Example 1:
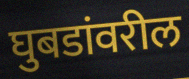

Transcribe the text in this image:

घुबडांवरील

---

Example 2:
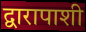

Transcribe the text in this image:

द्वारापाशी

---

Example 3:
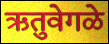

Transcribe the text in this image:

ऋतुवेगळे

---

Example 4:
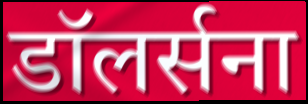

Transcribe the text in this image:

डॉलर्सना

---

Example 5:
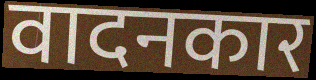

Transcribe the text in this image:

वादनकार